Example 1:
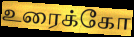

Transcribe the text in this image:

உரைக்கோ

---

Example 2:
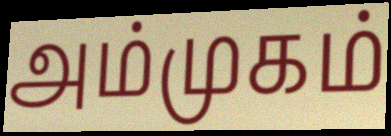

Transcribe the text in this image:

அம்முகம்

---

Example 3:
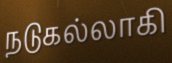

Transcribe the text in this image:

நடுகல்லாகி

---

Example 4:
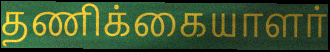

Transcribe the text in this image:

தணிக்கையாளர்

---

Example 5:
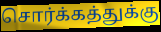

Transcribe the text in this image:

சொர்க்கத்துக்கு